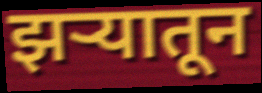
झऱ्यातून